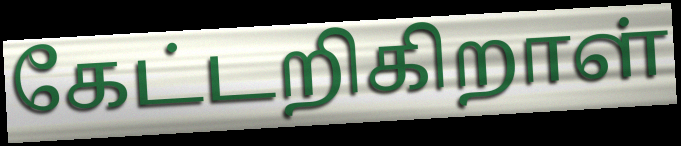
கேட்டறிகிறாள்